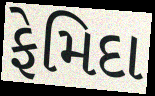
ફેમિદા